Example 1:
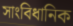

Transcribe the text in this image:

সাংবিধানিক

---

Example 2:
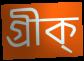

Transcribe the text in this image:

গ্ৰীক্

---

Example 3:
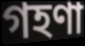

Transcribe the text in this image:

গহণা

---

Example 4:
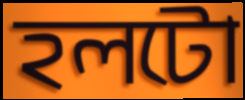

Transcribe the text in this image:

হলটো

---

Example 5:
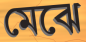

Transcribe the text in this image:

মেঝে